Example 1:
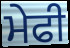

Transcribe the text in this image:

ਮੇਫੀ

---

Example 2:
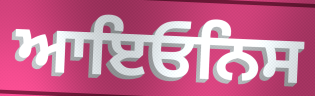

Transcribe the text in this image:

ਆਇਓਨਿਸ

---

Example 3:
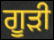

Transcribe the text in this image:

ਗੂੜੀ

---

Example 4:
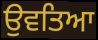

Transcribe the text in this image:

ਉਵਤਿਆ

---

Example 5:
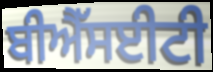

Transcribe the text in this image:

ਬੀਐੱਸਈਟੀ